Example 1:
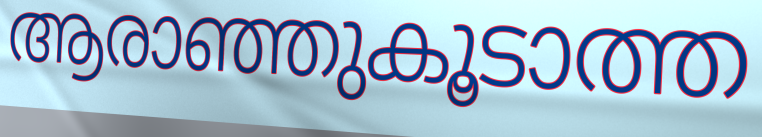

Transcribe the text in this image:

ആരാഞ്ഞുകൂടാത്ത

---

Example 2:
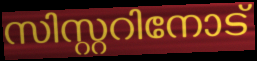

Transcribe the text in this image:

സിസ്റ്ററിനോട്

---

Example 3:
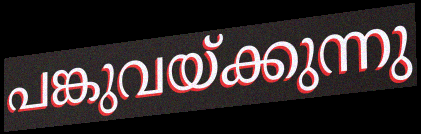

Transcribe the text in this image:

പങ്കുവയ്ക്കുന്നു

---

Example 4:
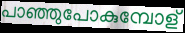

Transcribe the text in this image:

പാഞ്ഞുപോകുമ്പോള്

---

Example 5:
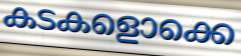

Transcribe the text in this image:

കടകളൊക്കെ